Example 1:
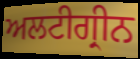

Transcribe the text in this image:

ਅਲਟੀਗ੍ਰੀਨ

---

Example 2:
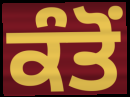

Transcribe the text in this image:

ਕੰਤੋਂ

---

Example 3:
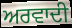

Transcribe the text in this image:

ਅਰਵਾਦੀ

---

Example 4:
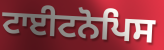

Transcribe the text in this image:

ਟਾਈਟਨੋਪਿਸ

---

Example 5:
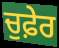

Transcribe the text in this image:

ਚੁਫ਼ੇਰ